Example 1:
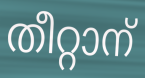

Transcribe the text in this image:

തീറ്റാന്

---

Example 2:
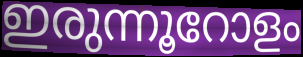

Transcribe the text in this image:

ഇരുന്നൂറോളം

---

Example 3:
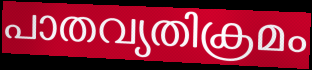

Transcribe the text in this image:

പാതവ്യതിക്രമം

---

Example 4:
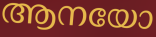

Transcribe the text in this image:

ആനയോ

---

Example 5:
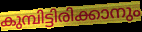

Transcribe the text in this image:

കുമ്പിട്ടിരിക്കാനും